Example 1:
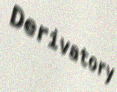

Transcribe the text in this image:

Derivatory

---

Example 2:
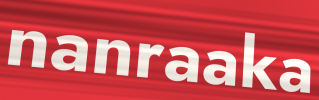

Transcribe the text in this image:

nanraaka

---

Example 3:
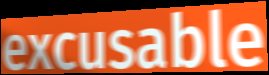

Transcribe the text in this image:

excusable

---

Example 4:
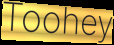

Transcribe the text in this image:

Toohey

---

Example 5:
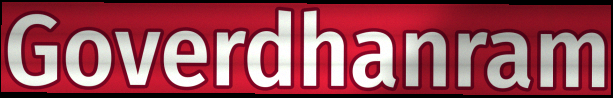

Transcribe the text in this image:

Goverdhanram